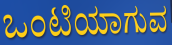
ಒಂಟಿಯಾಗುವ